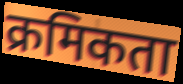
क्रमिकता